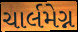
ચાર્લમેગ્ન